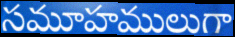
సమూహములుగా